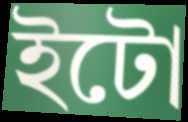
ইটো